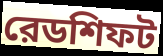
রেডশিফট